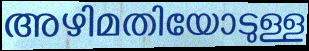
അഴിമതിയോടുള്ള